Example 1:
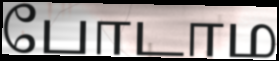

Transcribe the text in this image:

போடாம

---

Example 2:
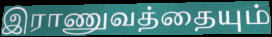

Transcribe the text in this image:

இராணுவத்தையும்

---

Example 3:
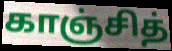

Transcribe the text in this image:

காஞ்சித்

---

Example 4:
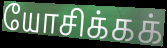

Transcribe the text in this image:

யோசிக்கக்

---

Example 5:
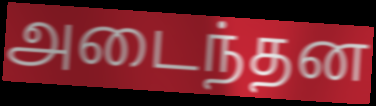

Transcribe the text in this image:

அடைந்தன